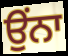
ਉੰਨਾ